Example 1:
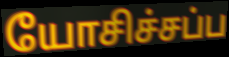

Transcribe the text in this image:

யோசிச்சப்ப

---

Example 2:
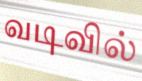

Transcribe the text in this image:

வடிவில்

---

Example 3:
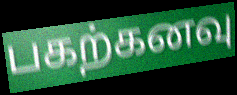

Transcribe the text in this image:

பகற்கனவு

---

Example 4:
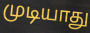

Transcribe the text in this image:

முடியாது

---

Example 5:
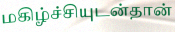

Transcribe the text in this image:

மகிழ்ச்சியுடன்தான்